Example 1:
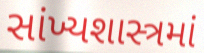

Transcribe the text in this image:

સાંખ્યશાસ્ત્રમાં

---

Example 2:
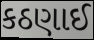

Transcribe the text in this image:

કઠણાઈ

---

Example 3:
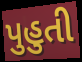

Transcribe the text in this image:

પુહુતી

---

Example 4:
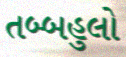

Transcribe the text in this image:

તબ્બહુલો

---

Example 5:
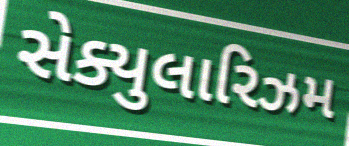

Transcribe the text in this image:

સેક્યુલારિઝમ